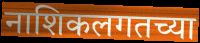
नाशिकलगतच्या